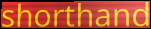
shorthand